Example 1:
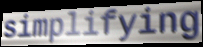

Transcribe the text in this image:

simplifying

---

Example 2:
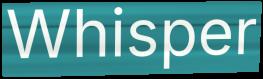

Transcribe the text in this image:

Whisper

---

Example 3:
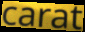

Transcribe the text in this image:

carat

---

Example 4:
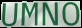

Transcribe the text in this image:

UMNO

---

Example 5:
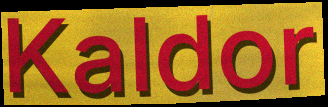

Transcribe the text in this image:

Kaldor